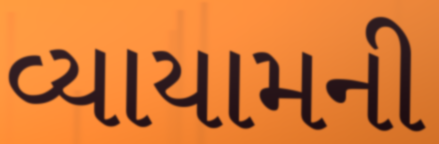
વ્યાયામની